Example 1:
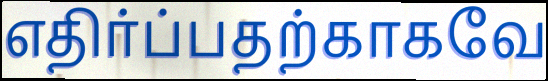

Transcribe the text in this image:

எதிர்ப்பதற்காகவே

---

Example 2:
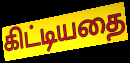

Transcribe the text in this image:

கிட்டியதை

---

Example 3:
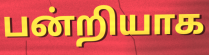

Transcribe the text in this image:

பன்றியாக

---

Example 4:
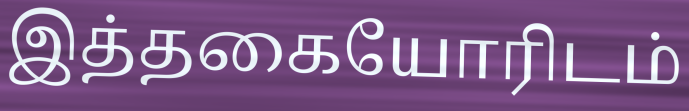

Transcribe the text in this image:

இத்தகையோரிடம்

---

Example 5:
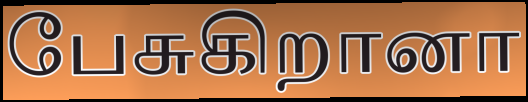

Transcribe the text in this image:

பேசுகிறானா